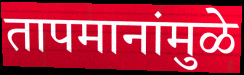
तापमानांमुळे